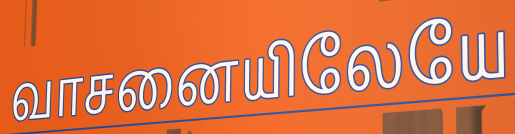
வாசனையிலேயே